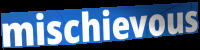
mischievous